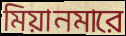
মিয়ানমারে